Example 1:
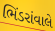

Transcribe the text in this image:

ભિંડરાંવાલે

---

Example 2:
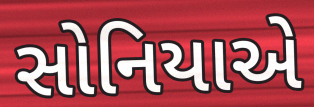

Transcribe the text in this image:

સોનિયાએ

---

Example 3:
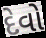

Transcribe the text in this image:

દેવો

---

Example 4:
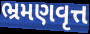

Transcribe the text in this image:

ભ્રમણવૃત્ત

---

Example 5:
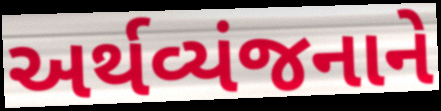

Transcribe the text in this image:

અર્થવ્યંજનાને